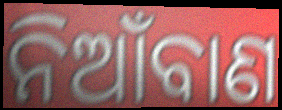
ନିଆଁବାଣ